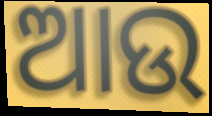
ଆଉ